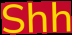
Shh